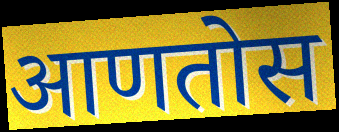
आणतोस